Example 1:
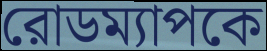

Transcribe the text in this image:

রোডম্যাপকে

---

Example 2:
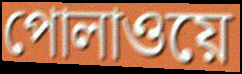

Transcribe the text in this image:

পোলাওয়ে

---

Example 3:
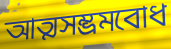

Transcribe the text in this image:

আত্মসম্ভ্রমবোধ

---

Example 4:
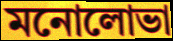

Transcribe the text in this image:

মনোলোভা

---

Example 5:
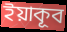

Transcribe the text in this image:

ইয়াকূব